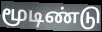
மூடிண்டு